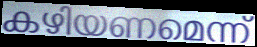
കഴിയണമെന്ന്